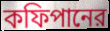
কফিপানের